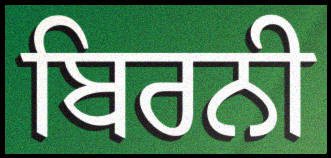
ਬਿਰਨੀ